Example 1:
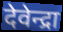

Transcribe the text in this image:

देवेन्द्रा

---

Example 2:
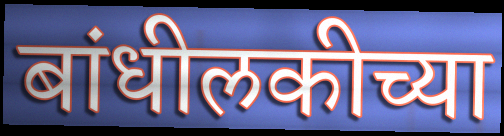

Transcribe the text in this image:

बांधीलकीच्या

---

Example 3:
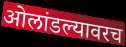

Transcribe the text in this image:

ओलांडल्यावरच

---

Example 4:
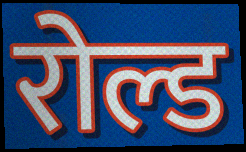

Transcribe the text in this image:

रोल्ड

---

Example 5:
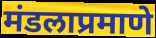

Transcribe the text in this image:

मंडलाप्रमाणे